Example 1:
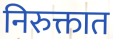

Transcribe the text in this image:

निरुक्तात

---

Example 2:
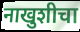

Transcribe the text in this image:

नाखुशीचा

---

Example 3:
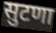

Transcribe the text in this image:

सुटणा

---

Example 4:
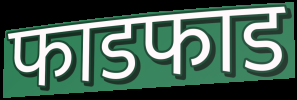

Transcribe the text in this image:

फाडफाड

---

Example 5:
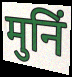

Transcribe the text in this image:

मुनिं